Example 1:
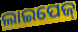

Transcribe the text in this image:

ଲାଇପେଜ୍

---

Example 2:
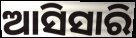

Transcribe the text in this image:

ଆସିସାରି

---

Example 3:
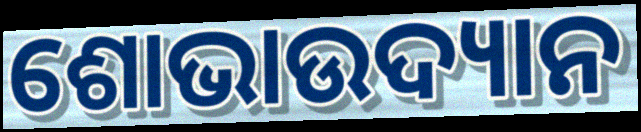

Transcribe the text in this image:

ଶୋଭାଉଦ୍ୟାନ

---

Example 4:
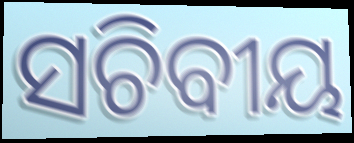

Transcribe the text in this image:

ସଚିବୀୟ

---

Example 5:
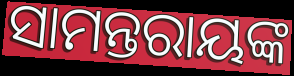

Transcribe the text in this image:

ସାମନ୍ତରାୟଙ୍କ